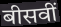
बीसवीं